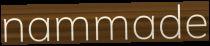
nammade